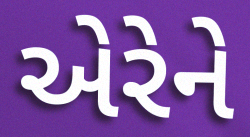
એરેને